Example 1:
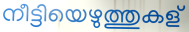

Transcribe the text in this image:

നീട്ടിയെഴുത്തുകള്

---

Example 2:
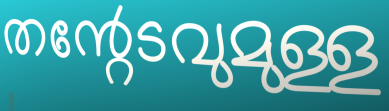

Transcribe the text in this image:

തന്റേടവുമുള്ള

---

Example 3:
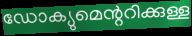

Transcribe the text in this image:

ഡോക്യുമെന്ററിക്കുള്ള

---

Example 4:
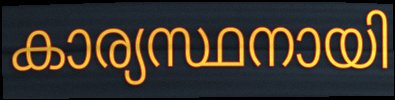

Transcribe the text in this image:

കാര്യസ്ഥനായി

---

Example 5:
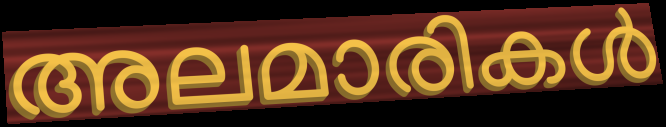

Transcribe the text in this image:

അലമാരികൾ